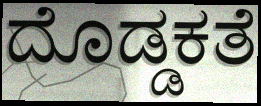
ದೊಡ್ಡಕತೆ